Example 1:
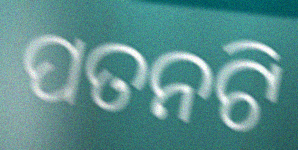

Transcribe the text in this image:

ପତନଟି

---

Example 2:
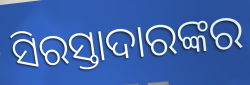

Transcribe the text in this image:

ସିରସ୍ତାଦାରଙ୍କର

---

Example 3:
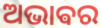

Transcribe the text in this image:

ଅଭାଵର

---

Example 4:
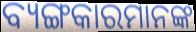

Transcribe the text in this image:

ବ୍ୟଙ୍ଗକାରମାନଙ୍କ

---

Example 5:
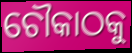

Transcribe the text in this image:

ଚୌକାଠକୁ